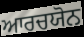
ਆਰਚਯੋਨ